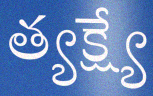
త్యక్ష్యే